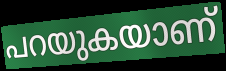
പറയുകയാണ്